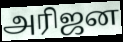
அரிஜன